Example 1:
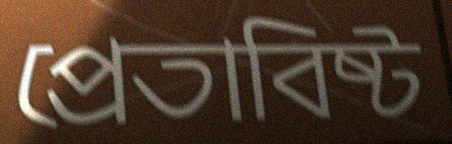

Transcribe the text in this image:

প্রেতাবিষ্ট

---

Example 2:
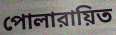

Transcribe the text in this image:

পোলারায়িত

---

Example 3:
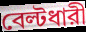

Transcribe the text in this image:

বেল্টধারী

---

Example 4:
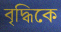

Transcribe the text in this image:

বৃদ্ধিকে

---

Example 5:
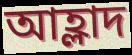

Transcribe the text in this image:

আহ্লাদ